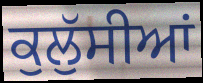
ਕੁਲੁੱਸੀਆਂ